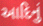
આદિનું